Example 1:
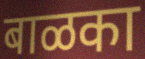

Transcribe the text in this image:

बाळका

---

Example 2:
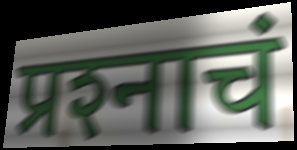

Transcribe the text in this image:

प्रश्नाचं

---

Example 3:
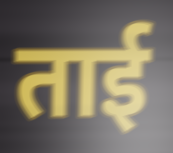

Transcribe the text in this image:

ताई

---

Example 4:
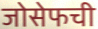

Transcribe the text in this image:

जोसेफची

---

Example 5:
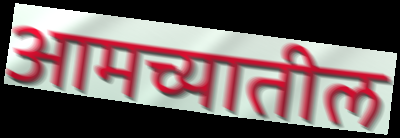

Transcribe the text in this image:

आमच्यातील